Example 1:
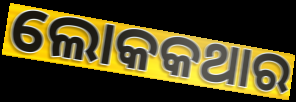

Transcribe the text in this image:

ଲୋକକଥାର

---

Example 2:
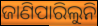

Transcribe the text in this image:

ଜାଣିପାରିଲୁନି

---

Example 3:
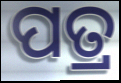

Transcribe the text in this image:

ପତ୍ର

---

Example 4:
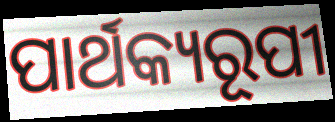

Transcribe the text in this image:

ପାର୍ଥକ୍ୟରୂପୀ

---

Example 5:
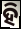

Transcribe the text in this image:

ହି